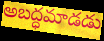
అబద్ధమాడడు